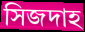
সিজদাহ